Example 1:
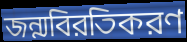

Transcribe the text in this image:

জন্মবিরতিকরণ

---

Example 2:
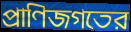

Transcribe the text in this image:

প্রাণিজগতের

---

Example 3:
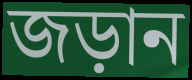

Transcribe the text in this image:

জড়ান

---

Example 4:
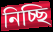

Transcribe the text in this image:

নিচ্ছি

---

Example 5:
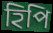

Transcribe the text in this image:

হিপি